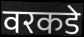
वरकडे